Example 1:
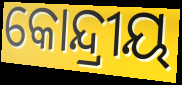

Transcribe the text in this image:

କୋନ୍ଦ୍ରୀୟ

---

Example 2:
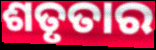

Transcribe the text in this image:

ଶତୃତାର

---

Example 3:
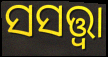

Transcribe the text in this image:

ସସତ୍ତ୍ୱା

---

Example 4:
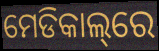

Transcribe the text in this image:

ମେଡିକାଲ୍‌ରେ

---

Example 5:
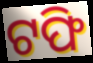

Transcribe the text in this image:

ଟଫି